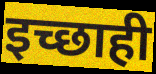
इच्छाही